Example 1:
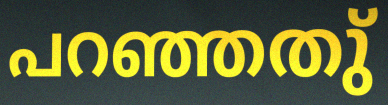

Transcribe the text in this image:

പറഞ്ഞതു്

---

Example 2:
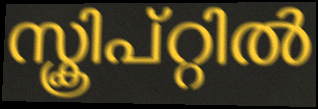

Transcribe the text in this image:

സ്ക്രിപ്റ്റിൽ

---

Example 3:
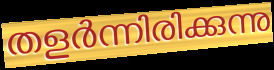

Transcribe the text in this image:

തളർന്നിരിക്കുന്നു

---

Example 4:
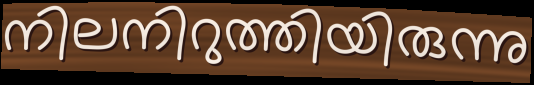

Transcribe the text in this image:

നിലനിറുത്തിയിരുന്നു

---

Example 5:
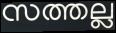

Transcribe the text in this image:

സത്തല്ല